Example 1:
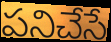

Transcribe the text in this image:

పనిచేసే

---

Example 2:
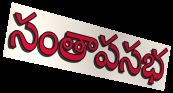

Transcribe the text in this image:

సంతాపసభ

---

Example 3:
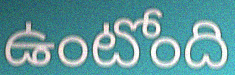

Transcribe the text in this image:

ఉంటోంది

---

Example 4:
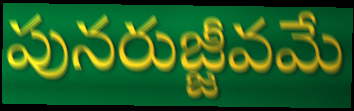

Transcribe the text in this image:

పునరుజ్జీవమే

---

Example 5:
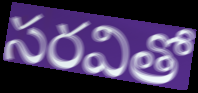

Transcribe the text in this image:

సరవితో